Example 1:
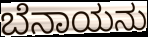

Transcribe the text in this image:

ಬೆನಾಯನು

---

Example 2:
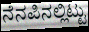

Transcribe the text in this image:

ನೆನಪಿನಲ್ಲಿಟ್ಟು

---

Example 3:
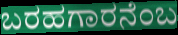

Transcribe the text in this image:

ಬರಹಗಾರನೆಂಬ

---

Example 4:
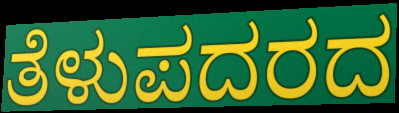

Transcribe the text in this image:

ತೆಳುಪದರದ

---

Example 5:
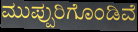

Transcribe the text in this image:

ಮುಪ್ಪುರಿಗೊಂಡಿವೆ